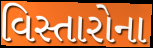
વિસ્તારોના